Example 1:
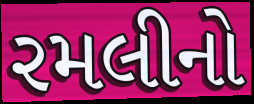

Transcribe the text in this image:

રમલીનો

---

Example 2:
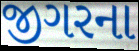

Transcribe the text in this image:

જીગરના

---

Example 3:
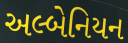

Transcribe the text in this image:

અલ્બેનિયન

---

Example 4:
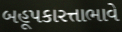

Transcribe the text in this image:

બહૂપકારત્તાભાવે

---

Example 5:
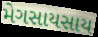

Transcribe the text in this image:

મેગસાયસાય